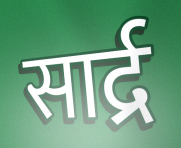
सार्द्र